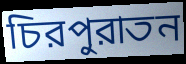
চিরপুরাতন